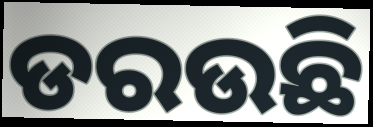
ଡରଉଛି